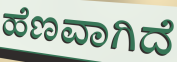
ಹೆಣವಾಗಿದೆ